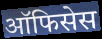
ऑफिसेस